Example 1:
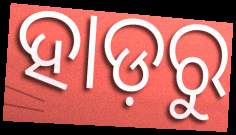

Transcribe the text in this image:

ହାଡ଼ରୁ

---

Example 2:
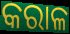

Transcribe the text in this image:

କରାଳ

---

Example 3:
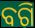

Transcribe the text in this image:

ବଗି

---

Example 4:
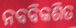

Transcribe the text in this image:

ନବବିକଶିତ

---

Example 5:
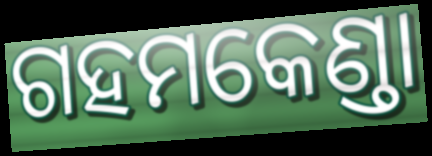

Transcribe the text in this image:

ଗହମକେଣ୍ଡା